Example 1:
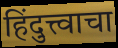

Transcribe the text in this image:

हिंदुत्त्वाचा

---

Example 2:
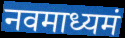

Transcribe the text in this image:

नवमाध्यमं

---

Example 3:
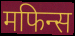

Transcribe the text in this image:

मफिन्स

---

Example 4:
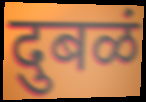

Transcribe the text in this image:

दुबळं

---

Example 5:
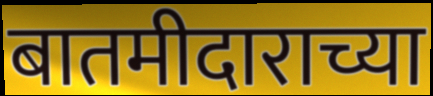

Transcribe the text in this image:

बातमीदाराच्या